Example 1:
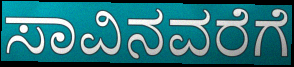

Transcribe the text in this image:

ಸಾವಿನವರೆಗೆ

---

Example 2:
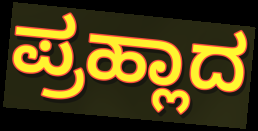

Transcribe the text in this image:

ಪ್ರಹ್ಲಾದ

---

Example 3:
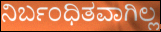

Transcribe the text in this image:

ನಿರ್ಬಂಧಿತವಾಗಿಲ್ಲ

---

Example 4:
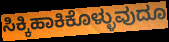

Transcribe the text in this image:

ಸಿಕ್ಕಿಹಾಕಿಕೊಳ್ಳುವುದೂ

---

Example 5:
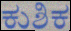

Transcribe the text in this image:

ಕುಶಿಕ